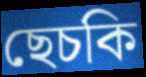
ছেচকি